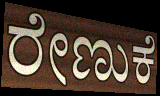
ರೇಣುಕೆ